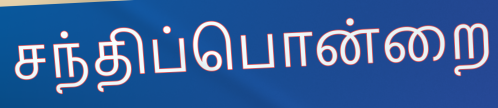
சந்திப்பொன்றை